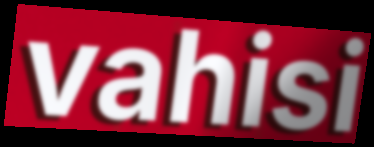
vahisi